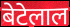
बेटेलाल